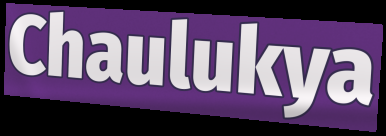
Chaulukya